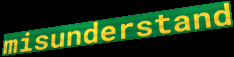
misunderstand